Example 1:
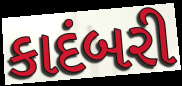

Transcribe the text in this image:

કાદંબરી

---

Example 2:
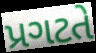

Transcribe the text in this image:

પ્રગટતે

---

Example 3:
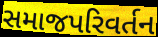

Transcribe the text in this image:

સમાજપરિવર્તન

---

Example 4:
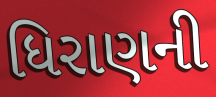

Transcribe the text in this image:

ધિરાણની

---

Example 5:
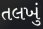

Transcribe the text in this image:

તલખું